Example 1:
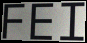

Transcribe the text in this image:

FEI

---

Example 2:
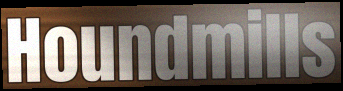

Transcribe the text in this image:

Houndmills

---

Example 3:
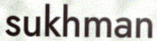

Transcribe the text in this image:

sukhman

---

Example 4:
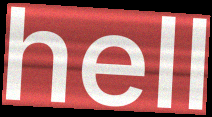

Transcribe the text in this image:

hell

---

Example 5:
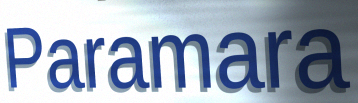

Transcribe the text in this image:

Paramara